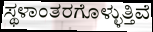
ಸ್ಥಳಾಂತರಗೊಳ್ಳುತ್ತಿವೆ